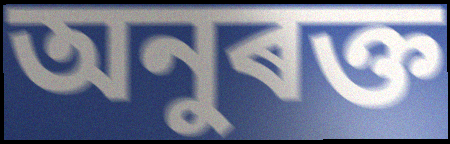
অনুৰক্ত